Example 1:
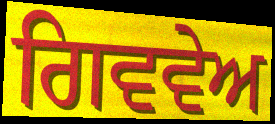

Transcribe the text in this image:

ਗਿਵਵੇਅ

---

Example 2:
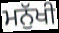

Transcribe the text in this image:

ਮਨੁੱਖੀ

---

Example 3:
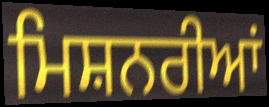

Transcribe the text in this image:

ਮਿਸ਼ਨਰੀਆਂ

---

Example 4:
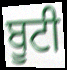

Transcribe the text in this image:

ਬੂਟੀ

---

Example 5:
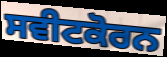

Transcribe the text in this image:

ਸਵੀਟਕੋਰਨ